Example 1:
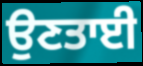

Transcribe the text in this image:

ਉਣਤਾਈ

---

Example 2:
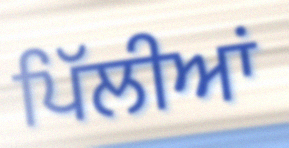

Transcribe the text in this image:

ਪਿੱਲੀਆਂ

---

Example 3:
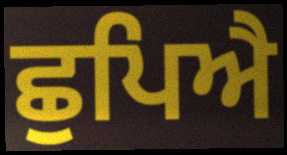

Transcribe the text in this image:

ਛੁਪਿਐ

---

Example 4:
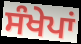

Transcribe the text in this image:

ਸੰਖੇਪਾਂ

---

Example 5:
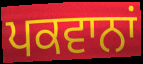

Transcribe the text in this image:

ਪਕਵਾਨਾਂ